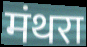
मंथरा